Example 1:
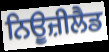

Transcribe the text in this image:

ਨਿਊਜ਼ੀਲੈਡ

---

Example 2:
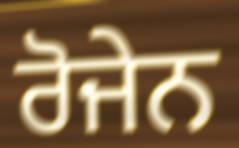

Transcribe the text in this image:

ਰੋਜੇਨ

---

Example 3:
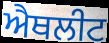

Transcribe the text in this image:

ਐਥਲੀਟ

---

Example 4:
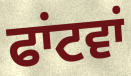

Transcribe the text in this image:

ਫਾਂਟਵਾਂ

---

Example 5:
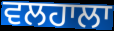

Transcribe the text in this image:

ਵਲਹਾਲਾ